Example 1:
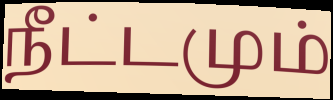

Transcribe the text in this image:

நீட்டமும்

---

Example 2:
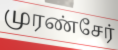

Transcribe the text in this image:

முரண்சேர்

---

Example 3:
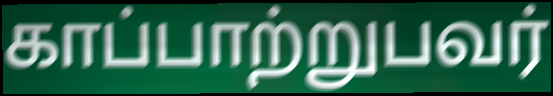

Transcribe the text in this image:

காப்பாற்றுபவர்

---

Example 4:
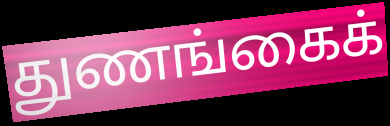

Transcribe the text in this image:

துணங்கைக்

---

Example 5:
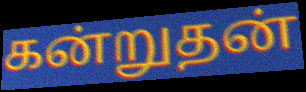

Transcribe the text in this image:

கன்றுதன்